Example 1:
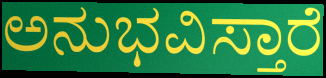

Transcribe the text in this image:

ಅನುಭವಿಸ್ತಾರೆ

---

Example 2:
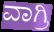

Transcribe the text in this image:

ವಾಗ್ರಿ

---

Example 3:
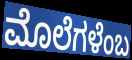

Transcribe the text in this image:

ಮೊಲೆಗಳೆಂಬ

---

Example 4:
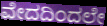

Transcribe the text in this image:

ವೇದದಿಂದಲೇ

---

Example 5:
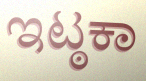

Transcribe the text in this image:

ಇಟ್ಠಕಾ